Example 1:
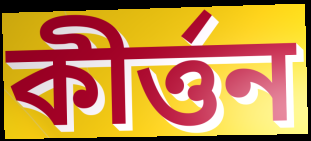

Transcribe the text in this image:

কীর্ত্তন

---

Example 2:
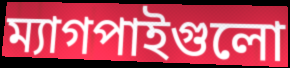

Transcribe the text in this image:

ম্যাগপাইগুলো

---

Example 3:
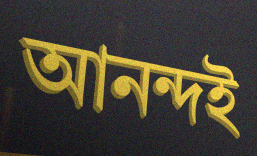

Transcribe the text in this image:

আনন্দই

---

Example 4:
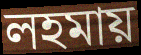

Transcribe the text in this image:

লহমায়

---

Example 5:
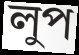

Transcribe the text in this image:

লুপ